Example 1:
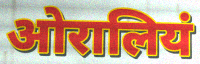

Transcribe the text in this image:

ओरालियं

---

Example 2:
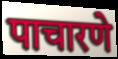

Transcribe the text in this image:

पाचारणे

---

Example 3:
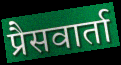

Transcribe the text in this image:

प्रैसवार्ता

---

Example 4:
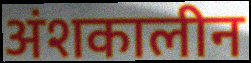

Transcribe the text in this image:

अंशकालीन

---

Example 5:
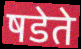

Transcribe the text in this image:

षडेते